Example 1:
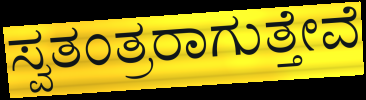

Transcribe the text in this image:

ಸ್ವತಂತ್ರರಾಗುತ್ತೇವೆ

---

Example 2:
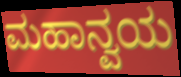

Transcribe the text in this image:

ಮಹಾನ್ವಯ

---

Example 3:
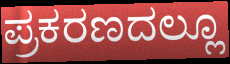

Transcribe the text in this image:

ಪ್ರಕರಣದಲ್ಲೂ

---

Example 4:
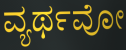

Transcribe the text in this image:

ವ್ಯರ್ಥವೋ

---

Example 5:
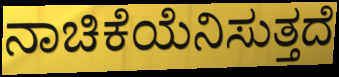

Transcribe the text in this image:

ನಾಚಿಕೆಯೆನಿಸುತ್ತದೆ